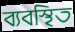
ব্যবস্থিত